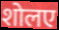
शोलए